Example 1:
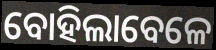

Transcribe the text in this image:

ବୋହିଲାବେଳେ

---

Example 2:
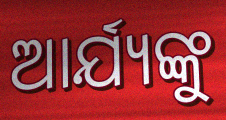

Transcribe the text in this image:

ଆର୍ଯ୍ୟଙ୍କୁ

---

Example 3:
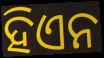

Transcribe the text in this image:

ହିଏନ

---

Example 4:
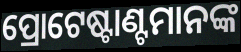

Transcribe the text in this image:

ପ୍ରୋଟେଷ୍ଟାଣ୍ଟମାନଙ୍କ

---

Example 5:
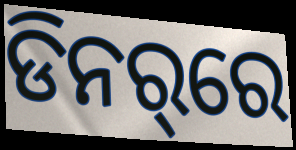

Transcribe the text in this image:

ଡିନର୍‌ରେ